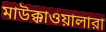
মাউক্কাওয়ালারা